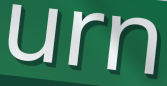
urn